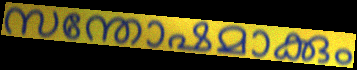
സന്തോഷമാക്കും